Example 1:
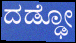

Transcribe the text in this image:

ದಡ್ಢೋ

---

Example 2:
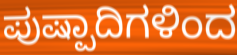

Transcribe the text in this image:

ಪುಷ್ಪಾದಿಗಳಿಂದ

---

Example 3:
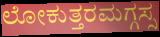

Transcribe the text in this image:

ಲೋಕುತ್ತರಮಗ್ಗಸ್ಸ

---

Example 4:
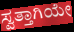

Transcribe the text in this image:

ಸ್ವತ್ತಾಗಿಯೇ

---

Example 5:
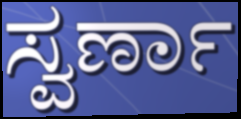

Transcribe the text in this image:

ಸ್ವರ್ಣಾ